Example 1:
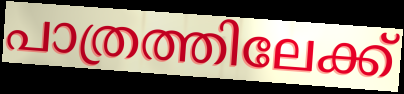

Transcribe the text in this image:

പാത്രത്തിലേക്ക്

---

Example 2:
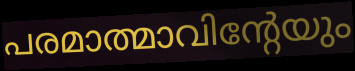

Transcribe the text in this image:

പരമാത്മാവിന്റേയും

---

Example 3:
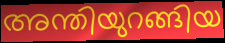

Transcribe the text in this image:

അന്തിയുറങ്ങിയ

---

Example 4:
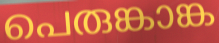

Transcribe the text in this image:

പെരുങ്കാങ്ക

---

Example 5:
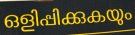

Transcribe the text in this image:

ഒളിപ്പിക്കുകയും